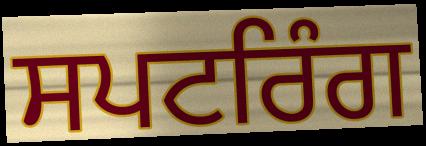
ਸਪਟਰਿੰਗ